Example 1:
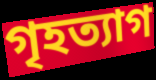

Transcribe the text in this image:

গৃহত্যাগ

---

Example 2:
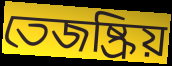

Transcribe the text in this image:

তেজষ্ক্রিয়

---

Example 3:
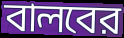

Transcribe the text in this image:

বালবের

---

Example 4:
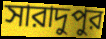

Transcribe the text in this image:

সারাদুপুর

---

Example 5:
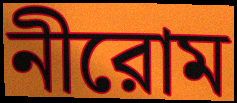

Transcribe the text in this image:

নীরোম